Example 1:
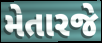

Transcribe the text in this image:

મેતારજે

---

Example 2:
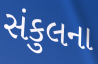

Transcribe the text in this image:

સંકુલના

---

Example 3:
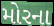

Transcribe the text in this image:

મોરના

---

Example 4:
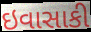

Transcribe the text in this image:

ઇવાસાકી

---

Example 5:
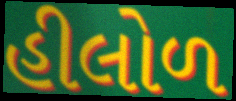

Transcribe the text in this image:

હીલોળ